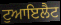
ਟੁਆਇਲੈਟ